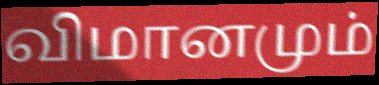
விமானமும்